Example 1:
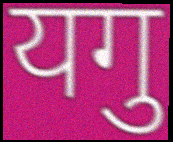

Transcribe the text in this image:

यगु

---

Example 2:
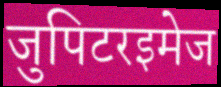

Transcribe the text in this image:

जुपिटरइमेज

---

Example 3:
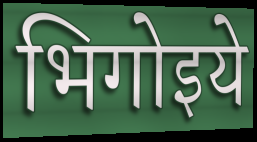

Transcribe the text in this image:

भिगोइये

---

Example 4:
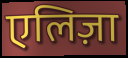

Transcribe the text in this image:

एलिज़ा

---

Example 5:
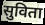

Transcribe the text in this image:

सुविता